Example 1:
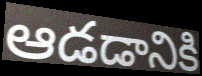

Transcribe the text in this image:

ఆడడానికి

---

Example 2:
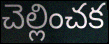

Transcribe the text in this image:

చెల్లించక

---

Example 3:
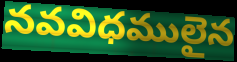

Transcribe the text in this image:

నవవిధములైన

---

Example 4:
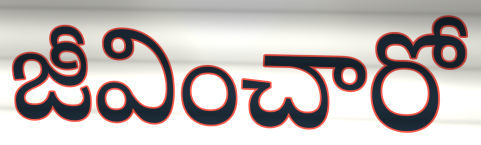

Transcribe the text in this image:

జీవించారో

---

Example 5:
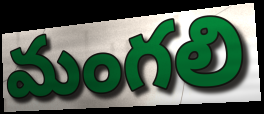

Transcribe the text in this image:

మంగలి